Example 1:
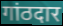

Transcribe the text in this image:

गांठदार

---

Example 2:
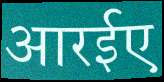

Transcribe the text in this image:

आरईए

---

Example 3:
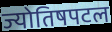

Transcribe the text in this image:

ज्योतिषपटल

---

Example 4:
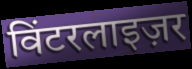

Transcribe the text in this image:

विंटरलाइज़र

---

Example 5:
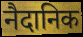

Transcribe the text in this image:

नैदानिक